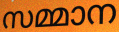
സമ്മാന